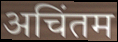
अचिंतम